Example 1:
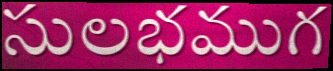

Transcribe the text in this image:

సులభముగ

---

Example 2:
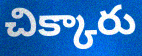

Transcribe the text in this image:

చిక్కారు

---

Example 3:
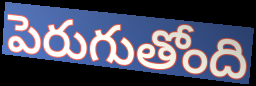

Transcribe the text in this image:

పెరుగుతోంది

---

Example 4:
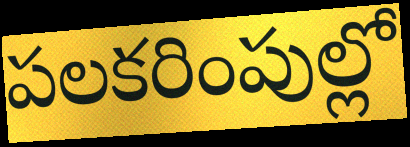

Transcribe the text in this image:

పలకరింపుల్లో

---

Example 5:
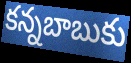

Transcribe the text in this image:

కన్నబాబుకు